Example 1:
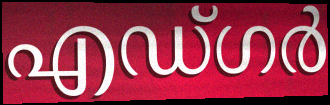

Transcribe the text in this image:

എഡ്ഗർ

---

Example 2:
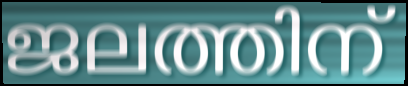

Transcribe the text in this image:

ജലത്തിന്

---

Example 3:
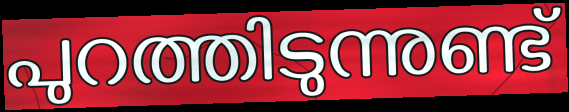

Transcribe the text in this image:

പുറത്തിടുന്നുണ്ട്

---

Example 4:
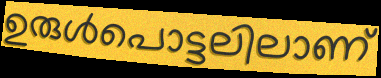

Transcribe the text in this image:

ഉരുൾപൊട്ടലിലാണ്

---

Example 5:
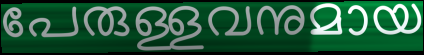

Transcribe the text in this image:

പേരുള്ളവനുമായ